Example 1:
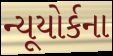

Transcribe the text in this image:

ન્યૂયોર્કના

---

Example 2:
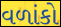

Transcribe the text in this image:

વળાંકો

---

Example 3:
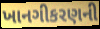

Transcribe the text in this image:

ખાનગીકરણની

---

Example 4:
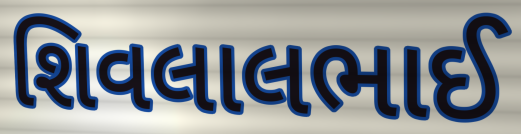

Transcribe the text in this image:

શિવલાલભાઈ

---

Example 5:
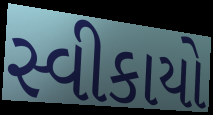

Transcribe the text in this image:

સ્વીકાયો